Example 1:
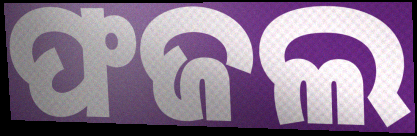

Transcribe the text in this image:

ଫଜଲ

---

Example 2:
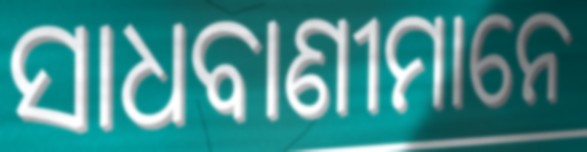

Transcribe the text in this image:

ସାଧବାଣୀମାନେ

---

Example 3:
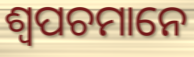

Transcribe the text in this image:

ଶ୍ୱପଚମାନେ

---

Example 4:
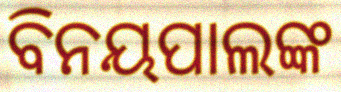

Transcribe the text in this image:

ବିନୟପାଲଙ୍କ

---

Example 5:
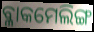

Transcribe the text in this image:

ବ୍ଳାକମେଲିଙ୍ଗ